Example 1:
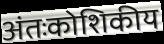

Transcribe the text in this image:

अंतःकोशिकीय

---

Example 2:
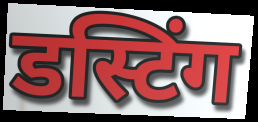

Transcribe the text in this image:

डस्टिंग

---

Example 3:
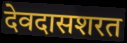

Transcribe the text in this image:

देवदासशरत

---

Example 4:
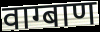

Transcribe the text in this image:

वाग्बाण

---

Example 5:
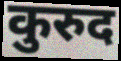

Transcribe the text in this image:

कुरुद